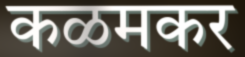
कळमकर